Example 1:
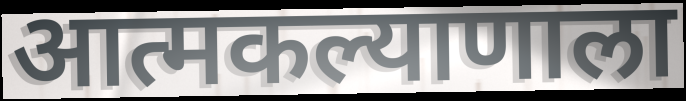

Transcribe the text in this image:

आत्मकल्याणाला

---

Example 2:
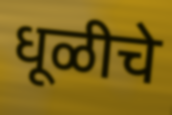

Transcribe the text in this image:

धूळीचे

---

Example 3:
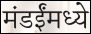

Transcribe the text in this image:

मंडईंमध्ये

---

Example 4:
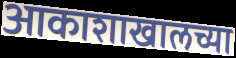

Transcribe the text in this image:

आकाशाखालच्या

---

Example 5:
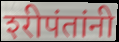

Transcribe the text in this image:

श्रीपंतांनी